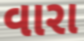
વારા